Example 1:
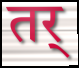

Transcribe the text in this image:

तर्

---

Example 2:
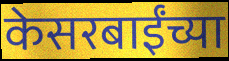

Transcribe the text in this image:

केसरबाईंच्या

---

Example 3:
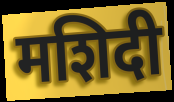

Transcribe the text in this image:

मशिदी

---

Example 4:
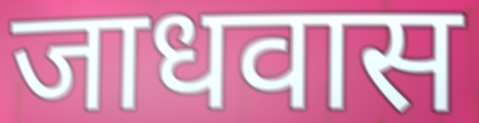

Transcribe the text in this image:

जाधवास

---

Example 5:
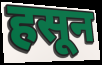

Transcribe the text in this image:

हसून